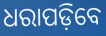
ଧରାପଡ଼ିବେ